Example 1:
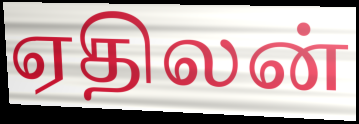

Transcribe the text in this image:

ஏதிலன்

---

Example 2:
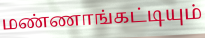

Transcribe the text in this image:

மண்ணாங்கட்டியும்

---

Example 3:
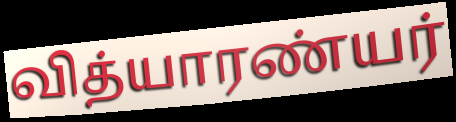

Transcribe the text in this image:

வித்யாரண்யர்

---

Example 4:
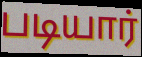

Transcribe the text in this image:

படியார்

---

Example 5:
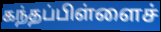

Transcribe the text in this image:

கந்தப்பிள்ளைச்